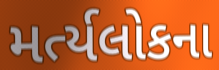
મર્ત્યલોકના